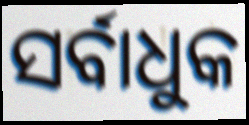
ସର୍ବାଧୁକ